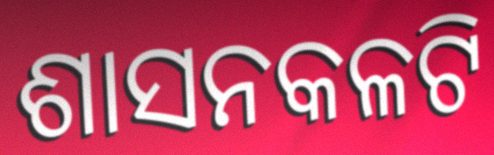
ଶାସନକଳଟି